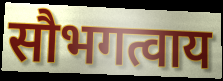
सौभगत्वाय